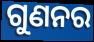
ଗୁଣନର